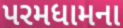
પરમધામના